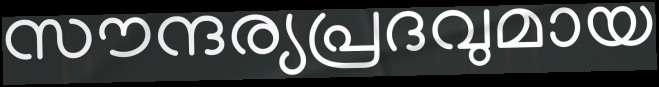
സൗന്ദര്യപ്രദവുമായ